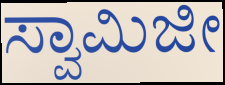
ಸ್ವಾಮಿಜೀ